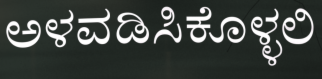
ಅಳವಡಿಸಿಕೊಳ್ಳಲಿ